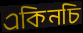
একিনচি